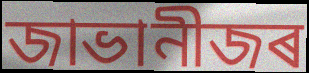
জাভানীজৰ